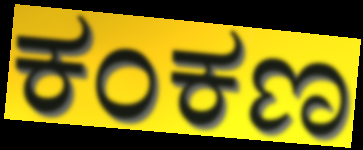
ಕಂಕಣ